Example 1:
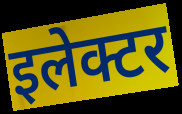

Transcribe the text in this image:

इलेक्टर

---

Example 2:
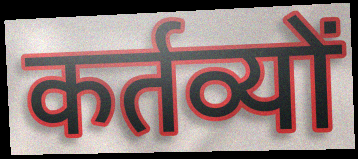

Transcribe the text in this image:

कर्तव्यों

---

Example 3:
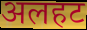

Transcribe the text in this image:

अलहट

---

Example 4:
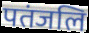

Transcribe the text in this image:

पतंजलि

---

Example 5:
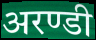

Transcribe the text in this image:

अरण्डी